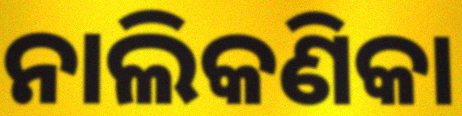
ନାଲିକଣିକା